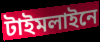
টাইমলাইনে